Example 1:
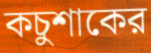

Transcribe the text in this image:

কচুশাকের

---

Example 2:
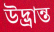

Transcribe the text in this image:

উদ্ভ্রান্ত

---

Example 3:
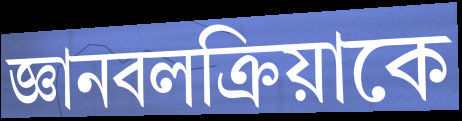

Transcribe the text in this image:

জ্ঞানবলক্রিয়াকে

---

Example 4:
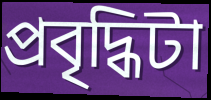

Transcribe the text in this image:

প্রবৃদ্ধিটা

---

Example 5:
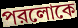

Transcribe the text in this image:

পরলোকে